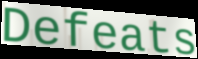
Defeats